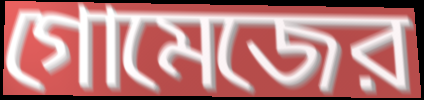
গোমেজের